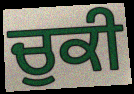
ਚੁਕੀ